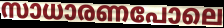
സാധാരണപോലെ